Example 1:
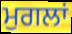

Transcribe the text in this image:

ਮੁਗਲਾਂ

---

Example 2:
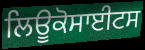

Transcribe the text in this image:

ਲਿਊਕੋਸਾਈਟਸ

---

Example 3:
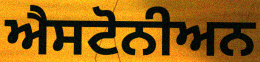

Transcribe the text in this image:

ਐਸਟੋਨੀਅਨ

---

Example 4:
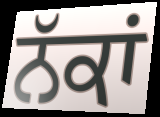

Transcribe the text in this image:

ਨੱਕਾਂ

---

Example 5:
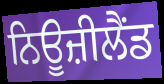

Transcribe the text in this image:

ਨਿਊਜ਼ੀਲੈੰਡ